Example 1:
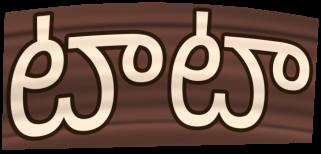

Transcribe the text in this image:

టాటా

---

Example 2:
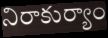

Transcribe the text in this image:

నిరాకుర్యాం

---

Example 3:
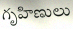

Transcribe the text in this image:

గృహిణులు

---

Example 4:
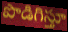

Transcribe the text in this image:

పొడిగిస్తూ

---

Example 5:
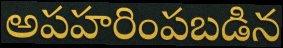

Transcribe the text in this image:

అపహరింపబడిన